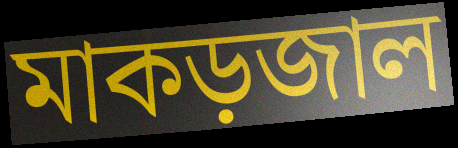
মাকড়জাল